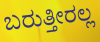
ಬರುತ್ತೀರಲ್ಲ